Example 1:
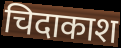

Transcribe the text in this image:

चिदाकाश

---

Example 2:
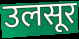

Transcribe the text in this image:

उलसूर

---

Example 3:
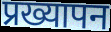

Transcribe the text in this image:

प्रख्यापन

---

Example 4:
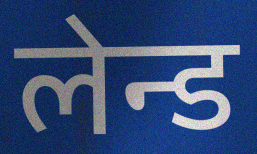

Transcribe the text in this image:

लेन्ड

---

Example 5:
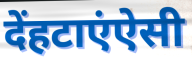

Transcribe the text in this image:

देंहटाएंऐसी